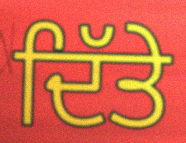
ਦਿੱਤੇ